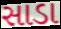
સાડા